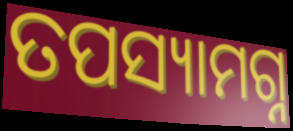
ତପସ୍ୟାମଗ୍ନ